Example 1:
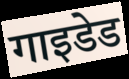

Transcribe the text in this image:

गाइडेड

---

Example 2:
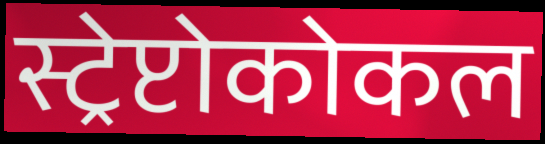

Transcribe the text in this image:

स्ट्रेप्टोकोकल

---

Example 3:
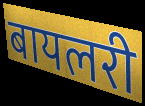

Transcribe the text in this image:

बायलरी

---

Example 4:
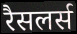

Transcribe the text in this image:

रैसलर्स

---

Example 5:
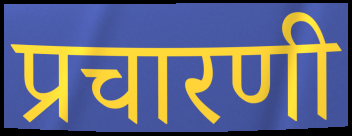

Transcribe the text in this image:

प्रचारणी